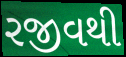
રજીવથી